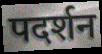
पदर्शन